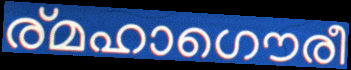
ര്മഹാഗൌരീ